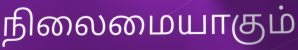
நிலைமையாகும்